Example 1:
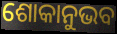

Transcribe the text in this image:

ଶୋକାନୁଭବ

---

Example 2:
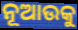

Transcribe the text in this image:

ନୂଆଉକୁ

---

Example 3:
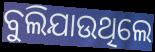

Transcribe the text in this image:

ବୁଲିଯାଉଥିଲେ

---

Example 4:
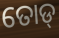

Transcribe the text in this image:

ତୋଡ୍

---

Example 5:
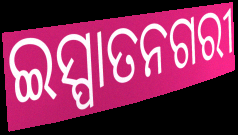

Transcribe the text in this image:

ଇସ୍ପାତନଗରୀ